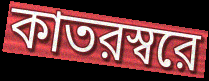
কাতরস্বরে